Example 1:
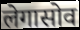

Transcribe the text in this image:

लेगासोव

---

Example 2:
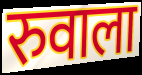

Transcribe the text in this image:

रुवाला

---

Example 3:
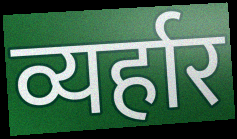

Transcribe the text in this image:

व्यर्हार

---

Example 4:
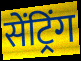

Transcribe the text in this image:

सेंट्रिंग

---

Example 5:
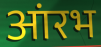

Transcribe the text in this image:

आंरभ